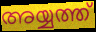
അയ്യത്ത്